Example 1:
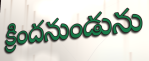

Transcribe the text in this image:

క్రిందనుండును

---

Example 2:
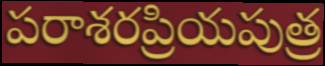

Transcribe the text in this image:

పరాశరప్రియపుత్ర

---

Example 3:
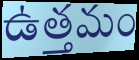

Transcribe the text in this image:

ఉత్తమం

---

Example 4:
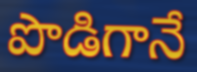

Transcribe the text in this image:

పొడిగానే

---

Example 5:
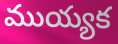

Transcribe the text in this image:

ముయ్యక